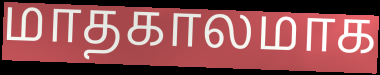
மாதகாலமாக